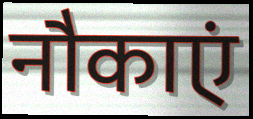
नौकाएं